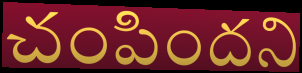
చంపిందని